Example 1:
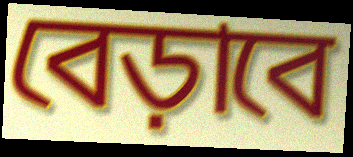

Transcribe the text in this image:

বেড়াবে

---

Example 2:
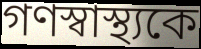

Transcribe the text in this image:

গণস্বাস্থ্যকে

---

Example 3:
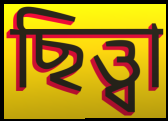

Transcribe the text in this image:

ছিত্ত্বা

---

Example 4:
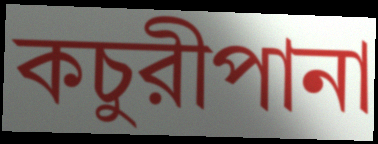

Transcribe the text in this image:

কচুরীপানা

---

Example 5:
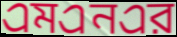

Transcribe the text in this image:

এমএনএর